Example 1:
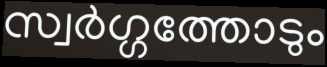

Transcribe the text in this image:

സ്വർഗ്ഗത്തോടും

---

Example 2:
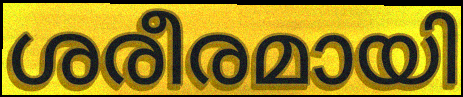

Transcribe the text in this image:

ശരീരമായി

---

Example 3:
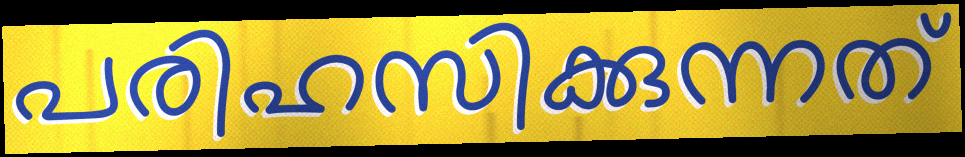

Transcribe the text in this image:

പരിഹസിക്കുന്നത്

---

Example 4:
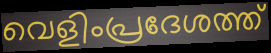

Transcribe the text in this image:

വെളിംപ്രദേശത്ത്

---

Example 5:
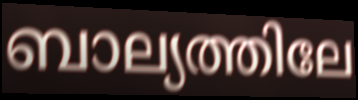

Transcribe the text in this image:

ബാല്യത്തിലേ